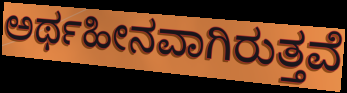
ಅರ್ಥಹೀನವಾಗಿರುತ್ತವೆ